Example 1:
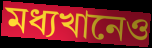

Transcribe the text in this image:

মধ্যখানেও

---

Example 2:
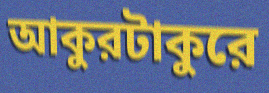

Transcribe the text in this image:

আকুরটাকুরে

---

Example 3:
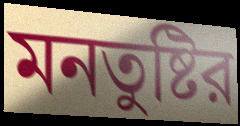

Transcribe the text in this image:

মনতুষ্টির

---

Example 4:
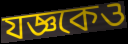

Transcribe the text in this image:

যজ্ঞকেও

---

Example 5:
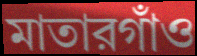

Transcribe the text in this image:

মাতারগাঁও